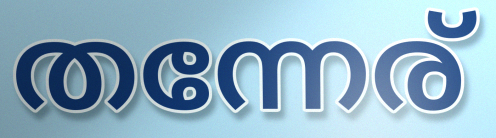
തന്നേര്